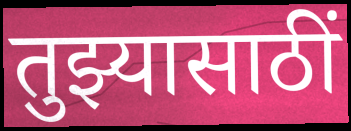
तुझ्यासाठीं